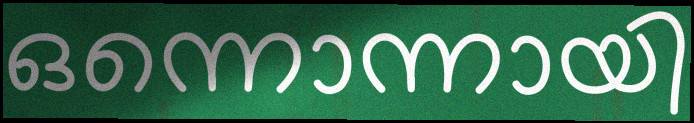
ഒന്നൊന്നായി